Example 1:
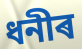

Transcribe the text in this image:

ধনীৰ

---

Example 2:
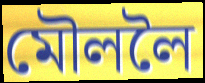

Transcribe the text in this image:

মৌললৈ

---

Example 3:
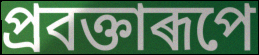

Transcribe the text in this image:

প্ৰবক্তাৰূপে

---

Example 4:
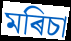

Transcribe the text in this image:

মৰিচা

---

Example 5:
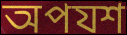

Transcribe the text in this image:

অপযশ